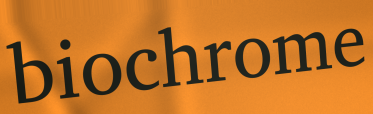
biochrome